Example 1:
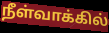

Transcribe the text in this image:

நீள்வாக்கில்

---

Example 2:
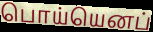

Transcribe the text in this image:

பொய்யெனப்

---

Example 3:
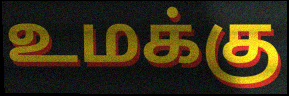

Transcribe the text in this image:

உமக்கு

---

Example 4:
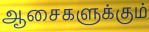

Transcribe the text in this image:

ஆசைகளுக்கும்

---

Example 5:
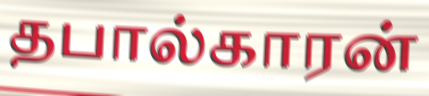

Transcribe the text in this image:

தபால்காரன்